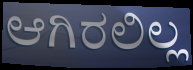
ಆಗಿರಲಿಲ್ಲ